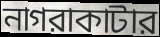
নাগরাকাটার